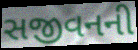
સજીવનની